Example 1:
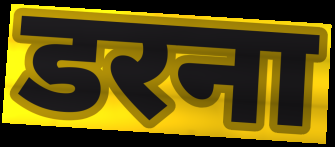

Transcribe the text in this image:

डरना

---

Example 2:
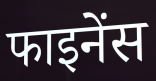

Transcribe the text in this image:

फाइनेंस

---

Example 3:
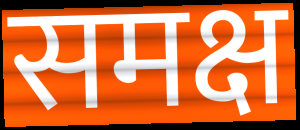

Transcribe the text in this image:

समक्ष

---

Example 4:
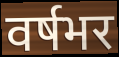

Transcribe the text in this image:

वर्षभर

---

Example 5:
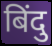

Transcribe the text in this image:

बिंदु